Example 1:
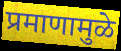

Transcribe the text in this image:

प्रमाणामुळे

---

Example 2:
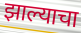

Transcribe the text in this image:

झाल्याचा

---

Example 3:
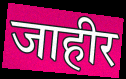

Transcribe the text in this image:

जाहीर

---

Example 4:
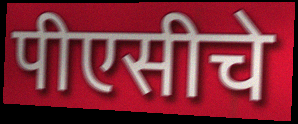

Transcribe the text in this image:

पीएसीचे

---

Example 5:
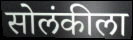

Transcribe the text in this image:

सोलंकीला